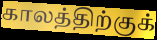
காலத்திற்குக்